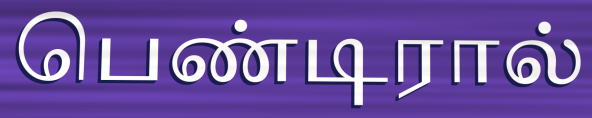
பெண்டிரால்